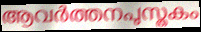
ആവർത്തനപുസ്തകം